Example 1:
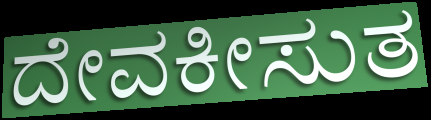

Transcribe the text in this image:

ದೇವಕೀಸುತ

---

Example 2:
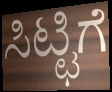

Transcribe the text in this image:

ಸಿಟ್ಟಿಗೆ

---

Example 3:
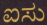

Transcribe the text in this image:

ಐಸು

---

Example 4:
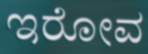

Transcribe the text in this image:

ಇರೋವ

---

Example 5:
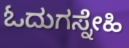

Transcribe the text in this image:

ಓದುಗಸ್ನೇಹಿ